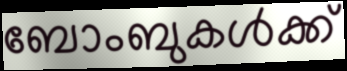
ബോംബുകൾക്ക്